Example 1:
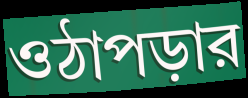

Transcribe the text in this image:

ওঠাপড়ার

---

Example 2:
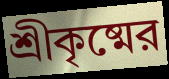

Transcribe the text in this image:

শ্রীকৃষ্মের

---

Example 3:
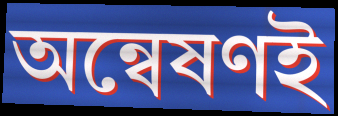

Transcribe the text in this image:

অন্বেষণই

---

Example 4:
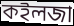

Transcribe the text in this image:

কইলজা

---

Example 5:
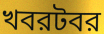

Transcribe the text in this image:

খবরটবর